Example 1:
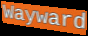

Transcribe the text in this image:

Wayward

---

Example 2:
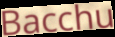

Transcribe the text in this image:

Bacchu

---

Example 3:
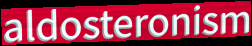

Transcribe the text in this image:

aldosteronism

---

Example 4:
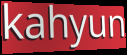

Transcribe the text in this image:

kahyun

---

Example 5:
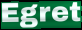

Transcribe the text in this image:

Egret